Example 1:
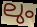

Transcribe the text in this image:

ലും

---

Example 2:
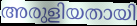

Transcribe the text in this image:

അരുളിയതായി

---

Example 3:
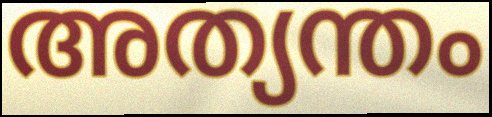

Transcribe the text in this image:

അത്യന്തം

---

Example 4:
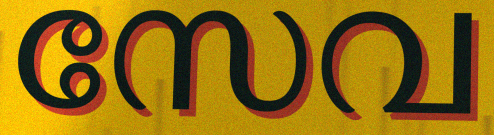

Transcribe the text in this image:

സേവ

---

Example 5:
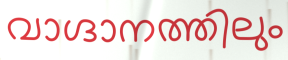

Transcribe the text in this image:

വാഗ്ദാനത്തിലും